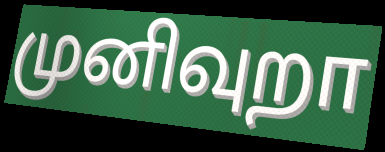
முனிவுறா